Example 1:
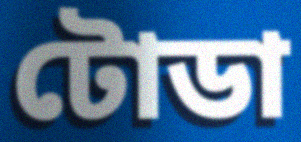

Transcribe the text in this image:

টোডা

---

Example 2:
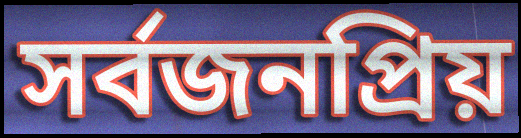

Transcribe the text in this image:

সর্বজনপ্রিয়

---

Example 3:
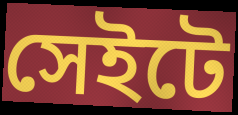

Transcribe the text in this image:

সেইটে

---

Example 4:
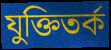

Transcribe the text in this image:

যুক্তিতর্ক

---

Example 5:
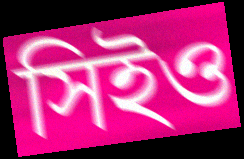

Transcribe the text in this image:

সিইও